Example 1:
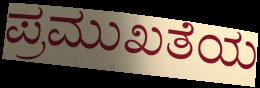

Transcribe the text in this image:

ಪ್ರಮುಖತೆಯ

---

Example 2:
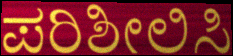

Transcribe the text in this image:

ಪರಿಶೀಲಿಸಿ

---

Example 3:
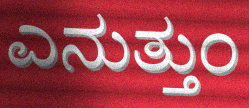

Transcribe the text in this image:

ಎನುತ್ತುಂ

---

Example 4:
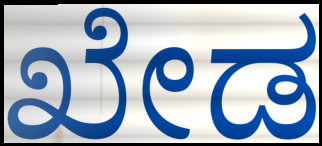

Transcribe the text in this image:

ಖೇಡ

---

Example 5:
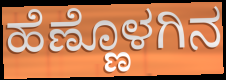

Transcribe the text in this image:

ಹೆಣ್ಣೊಳಗಿನ